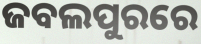
ଜବଲପୁରରେ